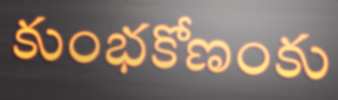
కుంభకోణంకు